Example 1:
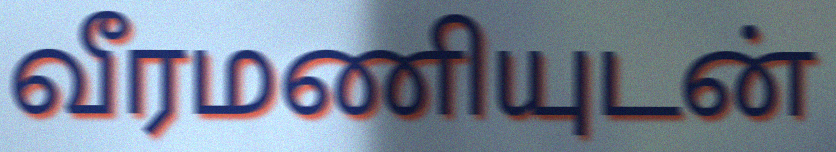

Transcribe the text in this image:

வீரமணியுடன்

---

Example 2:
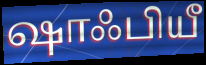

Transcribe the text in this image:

ஷாஃபியீ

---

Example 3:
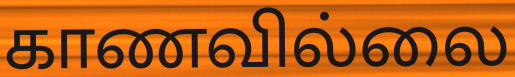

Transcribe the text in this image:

காணவில்லை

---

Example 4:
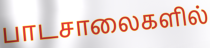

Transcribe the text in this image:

பாடசாலைகளில்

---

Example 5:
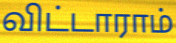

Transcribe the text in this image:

விட்டாராம்